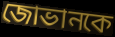
জোভানকে